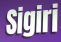
Sigiri